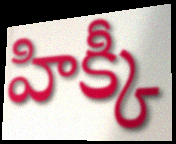
హిక్కీ